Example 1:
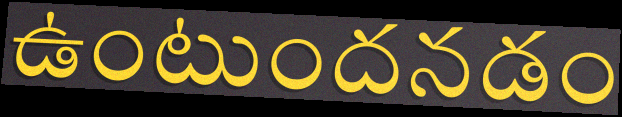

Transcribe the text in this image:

ఉంటుందనడం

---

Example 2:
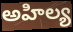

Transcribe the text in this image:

అహిల్య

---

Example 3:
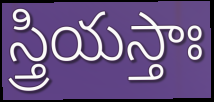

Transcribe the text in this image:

స్త్రియస్తాః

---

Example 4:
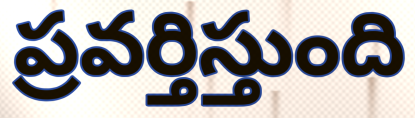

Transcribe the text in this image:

ప్రవర్తిస్తుంది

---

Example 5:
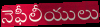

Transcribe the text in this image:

నెఫీలీయులు